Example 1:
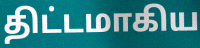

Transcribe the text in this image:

திட்டமாகிய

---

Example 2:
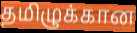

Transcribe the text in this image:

தமிழுக்கான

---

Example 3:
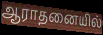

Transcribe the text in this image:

ஆராதனையில்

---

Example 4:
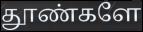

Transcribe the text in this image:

தூண்களே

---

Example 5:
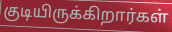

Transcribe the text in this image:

குடியிருக்கிறார்கள்